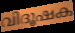
വിദൂഷക